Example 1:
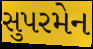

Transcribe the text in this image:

સુપરમેન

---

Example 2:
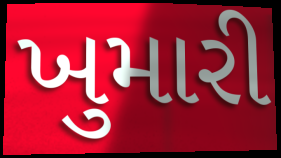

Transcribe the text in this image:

ખુમારી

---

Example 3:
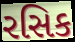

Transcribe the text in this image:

રસિક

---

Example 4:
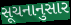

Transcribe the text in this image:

સૂચનાનુસાર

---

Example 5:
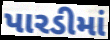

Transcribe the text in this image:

પારડીમાં